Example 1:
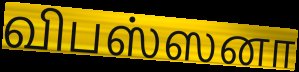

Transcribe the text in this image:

விபஸ்ஸனா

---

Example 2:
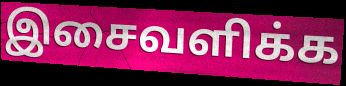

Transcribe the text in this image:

இசைவளிக்க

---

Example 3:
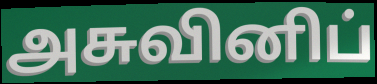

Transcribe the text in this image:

அசுவினிப்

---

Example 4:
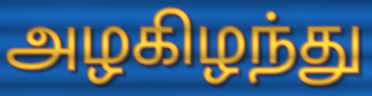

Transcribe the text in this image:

அழகிழந்து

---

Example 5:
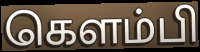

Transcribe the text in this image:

கெளம்பி